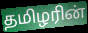
தமிழரின்